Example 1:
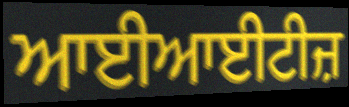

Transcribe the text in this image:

ਆਈਆਈਟੀਜ਼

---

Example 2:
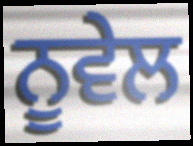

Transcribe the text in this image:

ਨੂਵੇਲ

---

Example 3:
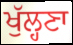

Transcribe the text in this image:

ਖੁੱਲ੍ਹਣਾ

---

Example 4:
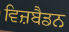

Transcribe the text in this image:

ਵਿਜ਼ਬੈਡਨ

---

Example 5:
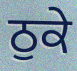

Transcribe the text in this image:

ਠੁਕੇ